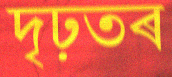
দৃঢ়তৰ